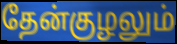
தேன்குழலும்